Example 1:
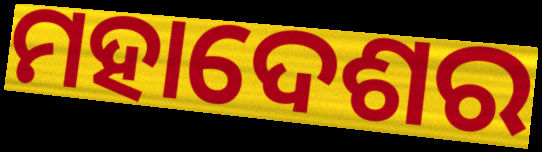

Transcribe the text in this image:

ମହାଦେଶର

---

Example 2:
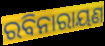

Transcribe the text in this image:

ରବିନାରାୟଣ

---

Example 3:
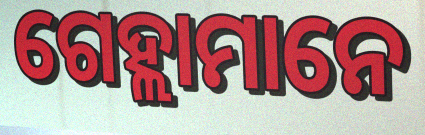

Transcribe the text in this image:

ଗେହ୍ଲାମାନେ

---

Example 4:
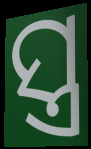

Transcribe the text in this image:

ସ୍ତ୍ର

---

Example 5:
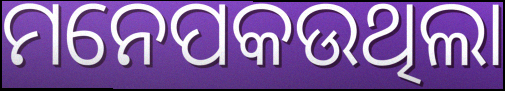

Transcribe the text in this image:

ମନେପକଉଥିଲା